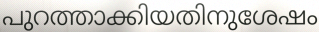
പുറത്താക്കിയതിനുശേഷം